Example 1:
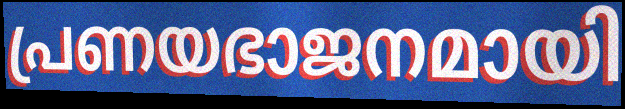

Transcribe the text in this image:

പ്രണയഭാജനമായി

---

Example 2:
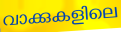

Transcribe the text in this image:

വാക്കുകളിലെ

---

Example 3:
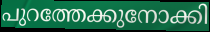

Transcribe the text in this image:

പുറത്തേക്കുനോക്കി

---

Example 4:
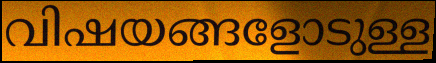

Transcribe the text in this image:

വിഷയങ്ങളോടുള്ള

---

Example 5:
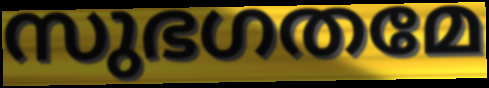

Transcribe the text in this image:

സുഭഗതമേ